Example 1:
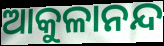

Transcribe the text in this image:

ଆକୁଳାନନ୍ଦ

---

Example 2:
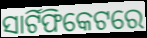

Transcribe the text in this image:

ସାର୍ଟିଫିକେଟରେ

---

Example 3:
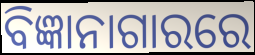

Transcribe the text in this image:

ବିଜ୍ଞାନାଗାରରେ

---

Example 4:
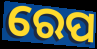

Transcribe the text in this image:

ରେପ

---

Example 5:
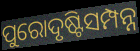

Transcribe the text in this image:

ପୁରୋଦୃଷ୍ଟିସମ୍ପନ୍ନ